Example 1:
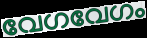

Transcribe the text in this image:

വേഗവേഗം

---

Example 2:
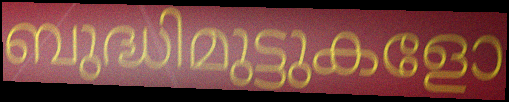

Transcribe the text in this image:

ബുദ്ധിമുട്ടുകളോ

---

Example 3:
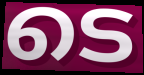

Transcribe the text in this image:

ടെ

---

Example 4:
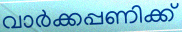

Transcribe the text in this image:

വാർക്കപ്പണിക്ക്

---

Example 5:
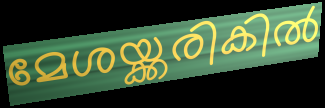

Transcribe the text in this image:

മേശയ്ക്കരികിൽ